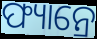
ଫ୍ୟାନ୍ରେ